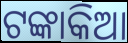
ଟଙ୍କାକିଆ